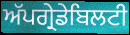
ਅੱਪਗ੍ਰੇਡੇਬਿਲਟੀ